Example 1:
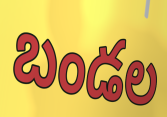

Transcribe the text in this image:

బండల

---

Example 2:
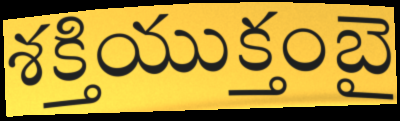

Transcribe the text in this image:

శక్తియుక్తంబై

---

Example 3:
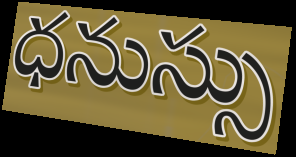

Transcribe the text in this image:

ధనుస్సు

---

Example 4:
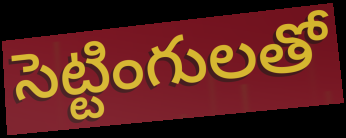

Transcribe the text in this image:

సెట్టింగులతో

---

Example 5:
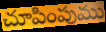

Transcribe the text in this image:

చూపింపుము